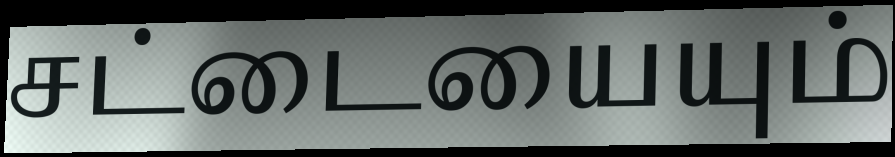
சட்டையையும்